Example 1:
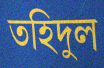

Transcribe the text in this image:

তহিদুল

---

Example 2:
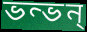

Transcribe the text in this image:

ভন্ভন্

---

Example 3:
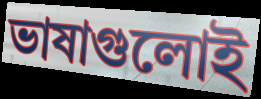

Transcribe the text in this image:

ভাষাগুলোই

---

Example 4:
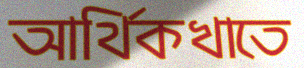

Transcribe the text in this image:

আর্থিকখাতে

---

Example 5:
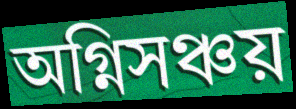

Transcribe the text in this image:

অগ্নিসঞ্চয়